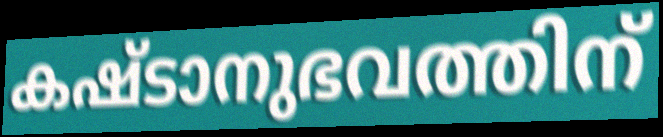
കഷ്ടാനുഭവത്തിന്